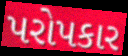
પરોપકાર